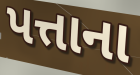
પત્તાના